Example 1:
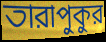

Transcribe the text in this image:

তারাপুকুর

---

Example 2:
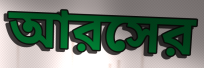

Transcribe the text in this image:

আরসের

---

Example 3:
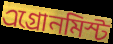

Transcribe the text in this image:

এগ্রোনমিস্ট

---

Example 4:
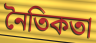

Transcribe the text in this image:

নৈতিকতা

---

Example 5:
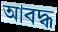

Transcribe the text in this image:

আবদ্ধ